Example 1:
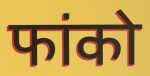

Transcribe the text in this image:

फांको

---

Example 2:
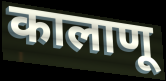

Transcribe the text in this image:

कालाणू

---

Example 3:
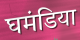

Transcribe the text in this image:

घमंडिया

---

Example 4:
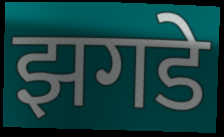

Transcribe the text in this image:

झगडे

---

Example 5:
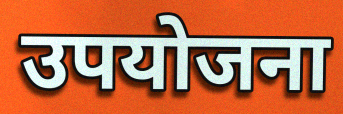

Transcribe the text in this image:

उपयोजना